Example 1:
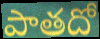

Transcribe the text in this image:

పాతదో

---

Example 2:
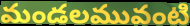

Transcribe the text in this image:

మండలమువంటి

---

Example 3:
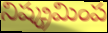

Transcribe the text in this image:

నిష్క్రమింప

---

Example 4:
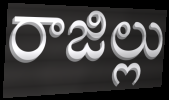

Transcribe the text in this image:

రాజిల్లు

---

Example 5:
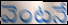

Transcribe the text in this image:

వెంటనే